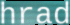
hrad